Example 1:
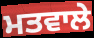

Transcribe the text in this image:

ਮਤਵਾਲੇ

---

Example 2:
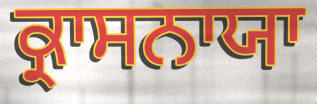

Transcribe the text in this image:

ਕ੍ਰਾਸਨਾਯਾ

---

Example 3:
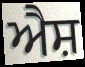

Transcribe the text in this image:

ਐਸ਼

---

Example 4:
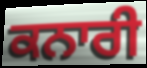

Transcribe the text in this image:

ਕਨਾਰੀ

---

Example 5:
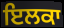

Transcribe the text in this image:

ਇਲਕਾ